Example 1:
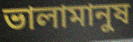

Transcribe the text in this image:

ভালামানুষ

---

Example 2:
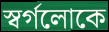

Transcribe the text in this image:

স্বর্গলোকে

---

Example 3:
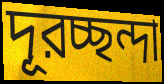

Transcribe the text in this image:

দূরচ্ছন্দা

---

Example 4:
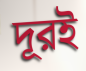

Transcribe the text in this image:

দূরই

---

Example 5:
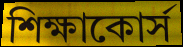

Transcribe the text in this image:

শিক্ষাকোর্স